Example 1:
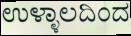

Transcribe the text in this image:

ಉಳ್ಳಾಲದಿಂದ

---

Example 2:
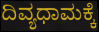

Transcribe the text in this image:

ದಿವ್ಯಧಾಮಕ್ಕೆ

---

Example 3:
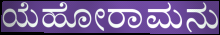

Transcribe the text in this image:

ಯೆಹೋರಾಮನು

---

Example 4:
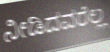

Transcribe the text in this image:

ನೀಡಿದವರೆಲ್ಲ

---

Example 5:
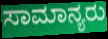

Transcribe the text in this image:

ಸಾಮಾನ್ಯರು